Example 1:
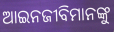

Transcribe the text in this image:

ଆଇନଜୀବିମାନଙ୍କୁ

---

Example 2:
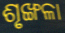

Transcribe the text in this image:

ଶୃଙ୍ଖଳା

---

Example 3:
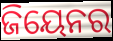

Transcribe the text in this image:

ଜିୟେନର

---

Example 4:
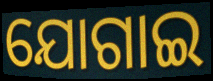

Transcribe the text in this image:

ଯୋଗାଇ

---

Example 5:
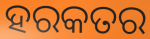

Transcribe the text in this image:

ହରକତର